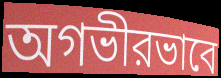
অগভীরভাবে